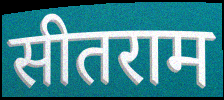
सीतराम